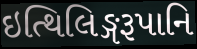
ઇત્થિલિઙ્ગરૂપાનિ